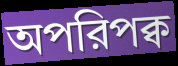
অপরিপক্ব